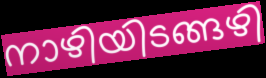
നാഴിയിടങ്ങഴി